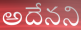
అదేనని